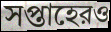
সপ্তাহেরও